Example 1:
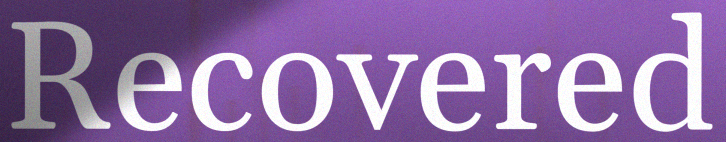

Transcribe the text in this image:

Recovered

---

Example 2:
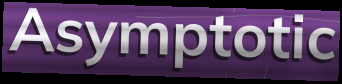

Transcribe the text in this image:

Asymptotic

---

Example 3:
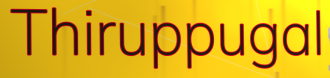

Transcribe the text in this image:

Thiruppugal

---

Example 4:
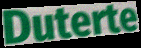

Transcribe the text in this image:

Duterte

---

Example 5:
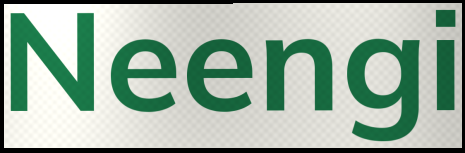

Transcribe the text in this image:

Neengi